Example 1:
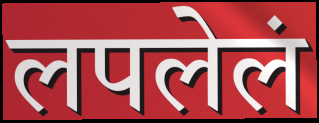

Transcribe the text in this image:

लपलेलं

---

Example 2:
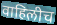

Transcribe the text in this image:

वाहिलीच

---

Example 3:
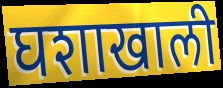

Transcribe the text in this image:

घशाखाली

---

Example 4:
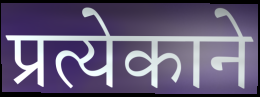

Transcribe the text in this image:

प्रत्येकाने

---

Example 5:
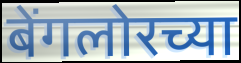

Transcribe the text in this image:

बेंगलोरच्या